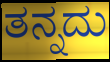
ತನ್ನದು